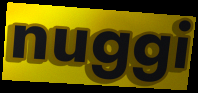
nuggi